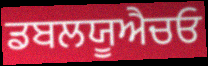
ਡਬਲਯੂਐਚਓ